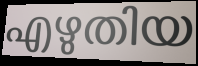
എഴുതിയ